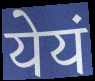
येयं